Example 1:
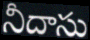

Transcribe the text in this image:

నీదాసు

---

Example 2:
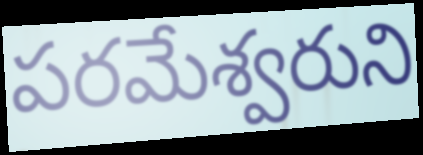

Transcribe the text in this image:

పరమేశ్వరుని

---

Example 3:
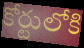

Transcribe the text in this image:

కోర్టులోకి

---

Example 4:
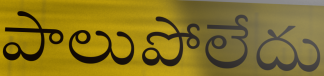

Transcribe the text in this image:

పాలుపోలేదు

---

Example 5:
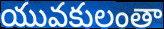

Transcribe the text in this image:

యువకులంతా